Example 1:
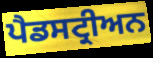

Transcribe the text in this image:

ਪੈਡਸਟ੍ਰੀਅਨ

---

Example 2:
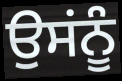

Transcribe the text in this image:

ਉਸਂਨੂੰ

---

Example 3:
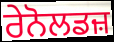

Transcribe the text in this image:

ਰੇਨੋਲਡਜ਼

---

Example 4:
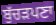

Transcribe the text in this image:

ਬੁੱਚੜਪਣਾ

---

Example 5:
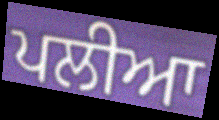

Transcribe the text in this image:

ਪਲੀਆ